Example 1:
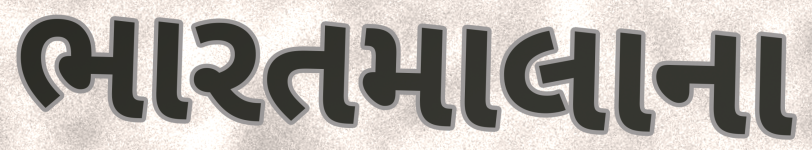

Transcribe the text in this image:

ભારતમાલાના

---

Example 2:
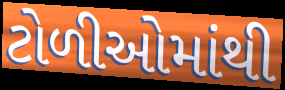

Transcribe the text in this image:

ટોળીઓમાંથી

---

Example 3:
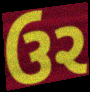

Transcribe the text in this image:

ઉર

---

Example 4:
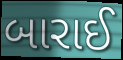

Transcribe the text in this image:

બારાઈ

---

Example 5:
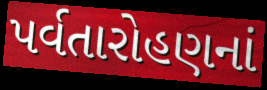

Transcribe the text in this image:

પર્વતારોહણનાં